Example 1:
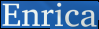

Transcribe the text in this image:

Enrica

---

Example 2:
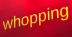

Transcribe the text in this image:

whopping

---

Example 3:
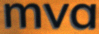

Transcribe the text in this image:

mva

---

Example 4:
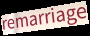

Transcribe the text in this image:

remarriage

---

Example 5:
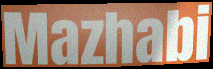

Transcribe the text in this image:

Mazhabi